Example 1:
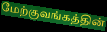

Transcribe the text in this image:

மேற்குவங்கத்தின்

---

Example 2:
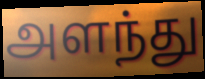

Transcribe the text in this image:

அளந்து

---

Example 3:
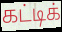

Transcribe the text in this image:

கட்டிக்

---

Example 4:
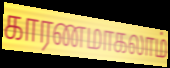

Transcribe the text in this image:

காரணமாகலாம்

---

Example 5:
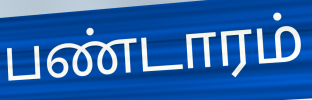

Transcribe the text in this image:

பண்டாரம்